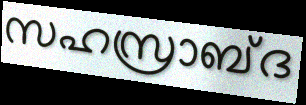
സഹസ്രാബ്ദ